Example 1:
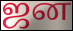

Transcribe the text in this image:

ஜன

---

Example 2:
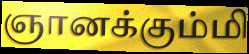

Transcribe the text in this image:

ஞானக்கும்மி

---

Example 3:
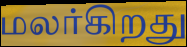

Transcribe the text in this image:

மலர்கிறது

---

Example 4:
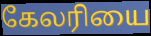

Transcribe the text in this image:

கேலரியை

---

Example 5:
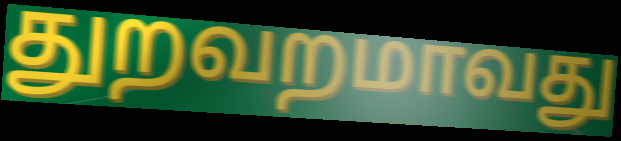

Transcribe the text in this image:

துறவறமாவது